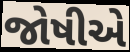
જોષીએ